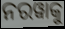
ନରୱାକୁ